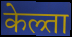
केल्ता